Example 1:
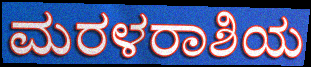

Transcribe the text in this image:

ಮರಳರಾಶಿಯ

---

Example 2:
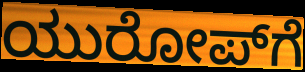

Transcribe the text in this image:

ಯುರೋಪ್‌ಗೆ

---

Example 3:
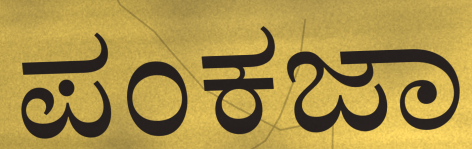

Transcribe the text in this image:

ಪಂಕಜಾ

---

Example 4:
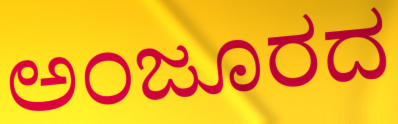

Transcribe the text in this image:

ಅಂಜೂರದ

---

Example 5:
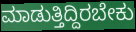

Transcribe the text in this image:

ಮಾಡುತ್ತಿದ್ದಿರಬೇಕು